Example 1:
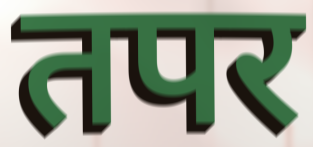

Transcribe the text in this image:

तपर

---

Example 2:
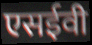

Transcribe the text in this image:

एसईवी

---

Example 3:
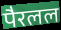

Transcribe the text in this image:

पैरलल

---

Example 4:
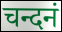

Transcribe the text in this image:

चन्दनं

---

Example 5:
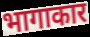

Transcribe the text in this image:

भागाकार